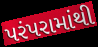
પરંપરામાંથી